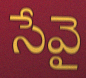
సేవై